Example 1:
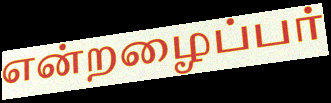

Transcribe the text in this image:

என்றழைப்பர்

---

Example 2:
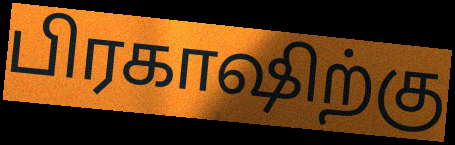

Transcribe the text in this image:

பிரகாஷிற்கு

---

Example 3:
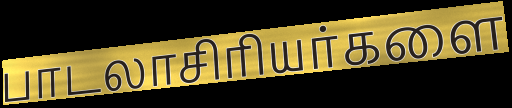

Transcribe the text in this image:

பாடலாசிரியர்களை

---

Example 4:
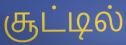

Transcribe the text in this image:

சூட்டில்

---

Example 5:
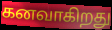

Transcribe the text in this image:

கனவாகிறது